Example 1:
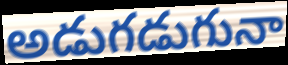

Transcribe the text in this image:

అడుగడుగునా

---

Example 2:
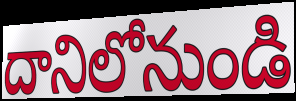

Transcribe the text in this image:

దానిలోనుండి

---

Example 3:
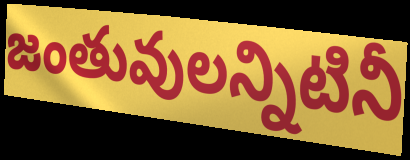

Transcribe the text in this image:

జంతువులన్నిటినీ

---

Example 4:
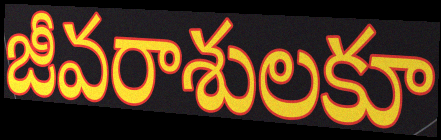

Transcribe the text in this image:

జీవరాశులకూ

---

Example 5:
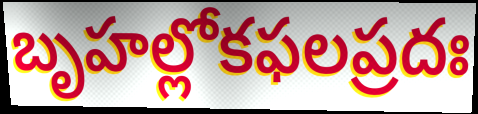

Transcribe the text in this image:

బృహల్లోకఫలప్రదః